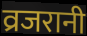
व्रजरानी